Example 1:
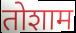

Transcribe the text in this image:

तोशाम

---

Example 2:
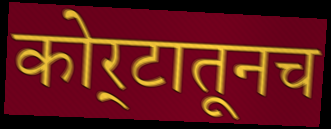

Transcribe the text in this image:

कोर्टातूनच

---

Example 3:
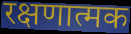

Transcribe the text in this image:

रक्षणात्मक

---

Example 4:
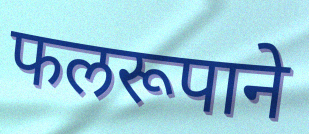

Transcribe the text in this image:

फलरूपाने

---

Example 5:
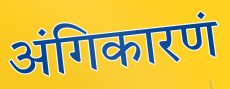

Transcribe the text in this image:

अंगिकारणं